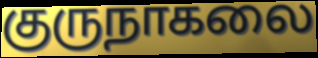
குருநாகலை